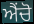
ਐਂਚੋ